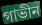
গাভীন